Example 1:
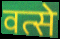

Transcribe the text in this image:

वत्से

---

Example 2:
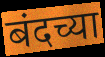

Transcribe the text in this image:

बंदच्या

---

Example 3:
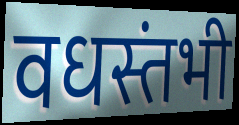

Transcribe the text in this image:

वधस्तंभी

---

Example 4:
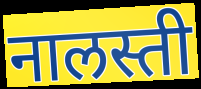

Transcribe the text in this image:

नालस्ती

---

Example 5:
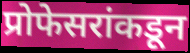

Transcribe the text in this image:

प्रोफेसरांकडून